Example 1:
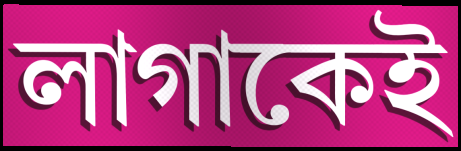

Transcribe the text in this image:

লাগাকেই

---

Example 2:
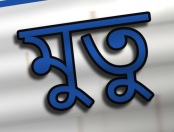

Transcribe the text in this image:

মুতু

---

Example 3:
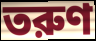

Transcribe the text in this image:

তরুণ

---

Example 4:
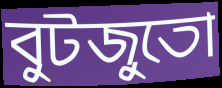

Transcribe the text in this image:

বুটজুতো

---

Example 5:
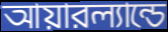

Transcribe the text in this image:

আয়ারল্যান্ডে